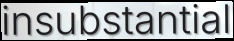
insubstantial